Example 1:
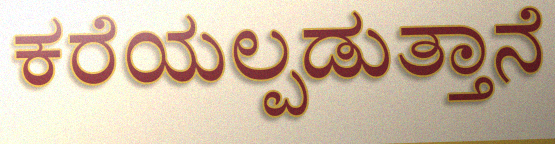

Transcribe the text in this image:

ಕರೆಯಲ್ಪಡುತ್ತಾನೆ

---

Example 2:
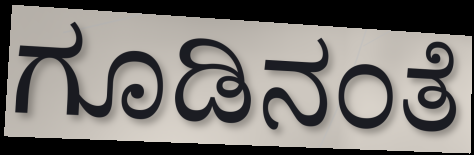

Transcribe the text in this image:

ಗೂಡಿನಂತೆ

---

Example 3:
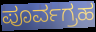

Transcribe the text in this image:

ಪೂರ್ವಗ್ರಹ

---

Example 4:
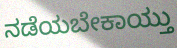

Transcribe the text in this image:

ನಡೆಯಬೇಕಾಯ್ತು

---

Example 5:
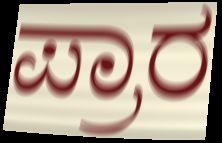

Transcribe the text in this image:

ಪ್ರಾರ